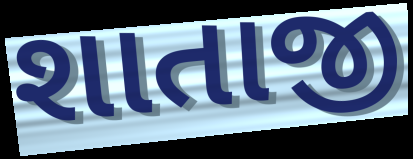
શાતાજી